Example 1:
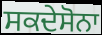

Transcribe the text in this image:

ਸਕਦੇਸੋਨਾ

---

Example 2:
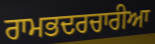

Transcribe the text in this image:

ਰਾਮਭਦਰਚਾਰੀਆ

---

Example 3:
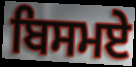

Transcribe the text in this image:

ਬਿਸਮਏ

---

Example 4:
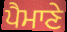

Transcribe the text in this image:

ਪੈਮਾਣੇ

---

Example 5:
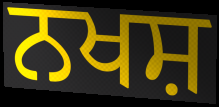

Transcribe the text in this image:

ਨਖਸ਼